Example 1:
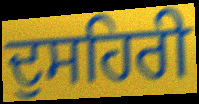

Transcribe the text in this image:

ਦੁਸਹਿਰੀ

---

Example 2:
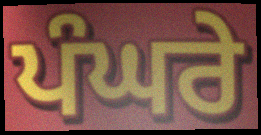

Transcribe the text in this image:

ਪੰਘਰੇ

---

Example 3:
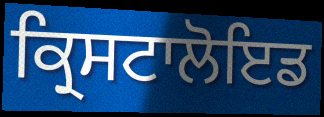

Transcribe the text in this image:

ਕ੍ਰਿਸਟਾਲੋਇਡ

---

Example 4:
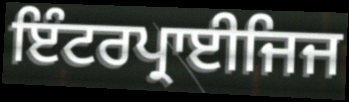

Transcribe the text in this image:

ਇੰਟਰਪ੍ਰਾਈਜਿਜ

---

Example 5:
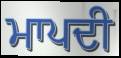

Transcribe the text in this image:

ਮਾਪਦੀ